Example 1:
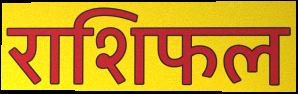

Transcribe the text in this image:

राशिफल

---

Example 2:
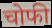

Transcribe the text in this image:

चोफी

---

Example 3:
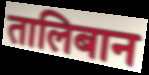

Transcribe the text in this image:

तालिबान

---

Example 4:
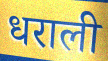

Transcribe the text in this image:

धराली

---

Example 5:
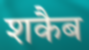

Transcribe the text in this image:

शकैब